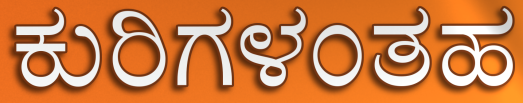
ಕುರಿಗಳಂತಹ